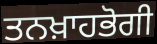
ਤਨਖ਼ਾਹਭੋਗੀ